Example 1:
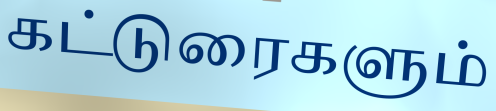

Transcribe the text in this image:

கட்டுரைகளும்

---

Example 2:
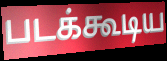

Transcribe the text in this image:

படக்கூடிய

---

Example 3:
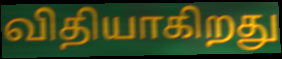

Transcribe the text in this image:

விதியாகிறது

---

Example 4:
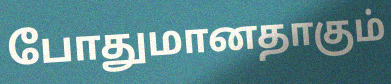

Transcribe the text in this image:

போதுமானதாகும்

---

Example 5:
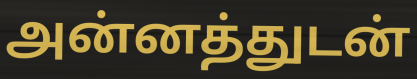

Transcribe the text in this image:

அன்னத்துடன்